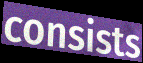
consists